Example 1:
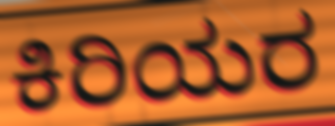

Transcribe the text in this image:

ಕಿರಿಯರ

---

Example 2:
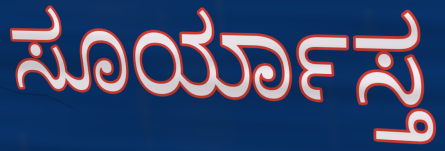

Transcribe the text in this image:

ಸೂರ್ಯಾಸ್ತ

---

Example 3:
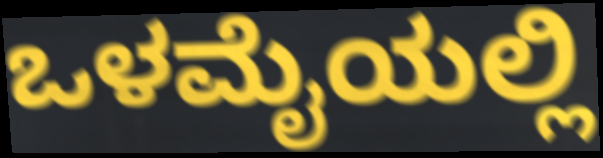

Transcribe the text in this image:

ಒಳಮೈಯಲ್ಲಿ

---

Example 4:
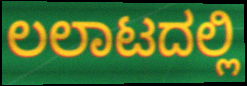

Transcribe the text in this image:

ಲಲಾಟದಲ್ಲಿ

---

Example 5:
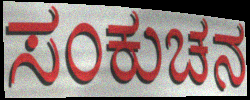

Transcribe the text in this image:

ಸಂಕುಚನ